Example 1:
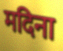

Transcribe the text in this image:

मदिना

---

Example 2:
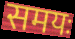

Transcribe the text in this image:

समयः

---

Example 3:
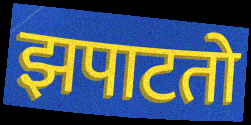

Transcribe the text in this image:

झपाटतो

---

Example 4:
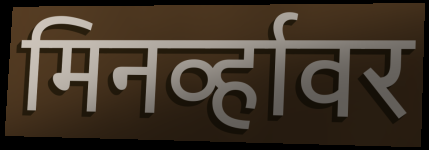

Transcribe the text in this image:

मिनर्व्हावर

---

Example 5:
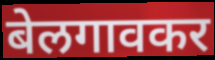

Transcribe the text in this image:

बेलगावकर